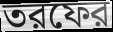
তরফের